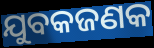
ଯୁବକଜଣକ